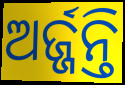
ଅର୍ଜ୍ଜନ୍ତି